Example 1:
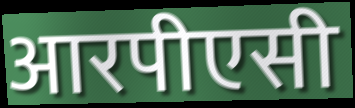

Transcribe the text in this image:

आरपीएसी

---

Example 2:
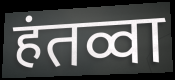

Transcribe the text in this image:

हंतव्वा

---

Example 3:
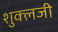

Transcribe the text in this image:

शुक्‍लजी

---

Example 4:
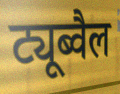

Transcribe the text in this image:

ट्यूब्वैल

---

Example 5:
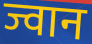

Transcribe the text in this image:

ज्वान